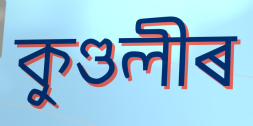
কুণ্ডলীৰ